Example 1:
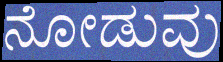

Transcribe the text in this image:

ನೋಡುವು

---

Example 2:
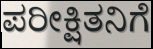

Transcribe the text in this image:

ಪರೀಕ್ಷಿತನಿಗೆ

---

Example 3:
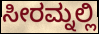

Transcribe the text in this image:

ಸೀರಮ್ನಲ್ಲಿ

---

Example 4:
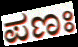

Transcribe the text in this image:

ಪಣಃ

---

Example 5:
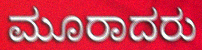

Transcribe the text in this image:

ಮೂರಾದರು